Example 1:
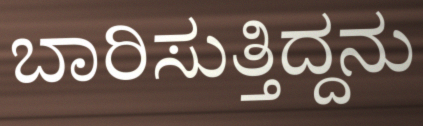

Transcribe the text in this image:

ಬಾರಿಸುತ್ತಿದ್ದನು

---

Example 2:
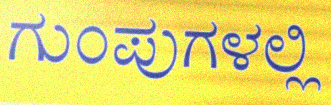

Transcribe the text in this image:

ಗುಂಪುಗಳಲ್ಲಿ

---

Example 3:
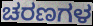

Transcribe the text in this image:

ಚರಣಗಳ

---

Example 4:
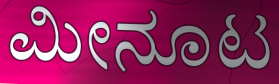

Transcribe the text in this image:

ಮೀನೂಟ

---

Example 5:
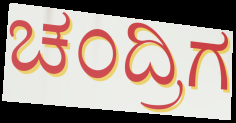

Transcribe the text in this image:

ಚಂದ್ರಿಗ